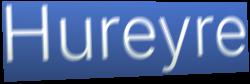
Hureyre